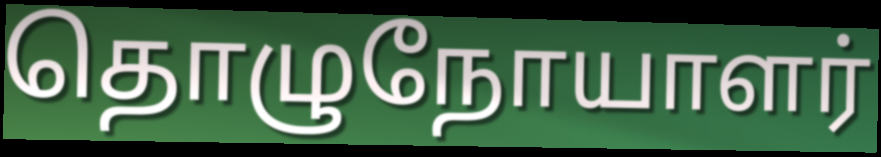
தொழுநோயாளர்